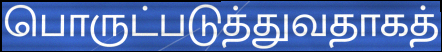
பொருட்படுத்துவதாகத்